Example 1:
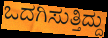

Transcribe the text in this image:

ಒದಗಿಸುತ್ತಿದ್ದು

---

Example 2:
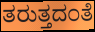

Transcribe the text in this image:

ತರುತ್ತದಂತೆ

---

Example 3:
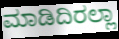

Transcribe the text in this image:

ಮಾಡಿದಿರಲ್ಲಾ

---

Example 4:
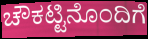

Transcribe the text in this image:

ಚೌಕಟ್ಟಿನೊಂದಿಗೆ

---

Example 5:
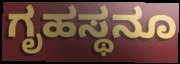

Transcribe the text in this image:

ಗೃಹಸ್ಥನೂ